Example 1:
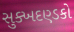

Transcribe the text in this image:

સુક્ખદણ્ડકો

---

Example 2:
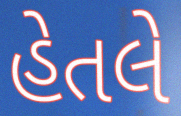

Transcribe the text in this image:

હેતલે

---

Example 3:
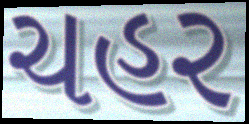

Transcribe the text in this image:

ચહર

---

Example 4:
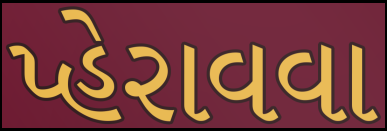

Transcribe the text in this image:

પ્હેરાવવા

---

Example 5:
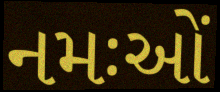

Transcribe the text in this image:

નમઃઓં